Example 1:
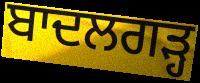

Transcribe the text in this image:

ਬਾਦਲਗੜ੍ਹ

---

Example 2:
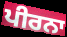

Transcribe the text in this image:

ਪੀਰਨਾ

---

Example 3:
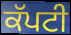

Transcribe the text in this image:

ਕੱਪਟੀ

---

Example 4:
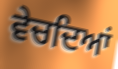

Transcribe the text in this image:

ਵੇਚਦਿਆਂ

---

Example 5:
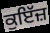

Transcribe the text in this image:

ਕੁਇੱਜ਼